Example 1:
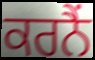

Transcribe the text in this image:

ਕਰਨੈਂ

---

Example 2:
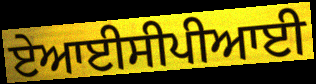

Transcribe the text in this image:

ਏਆਈਸੀਪੀਆਈ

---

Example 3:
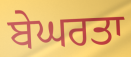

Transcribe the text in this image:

ਬੇਘਰਤਾ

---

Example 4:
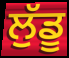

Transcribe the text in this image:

ਲੁੱਡੂ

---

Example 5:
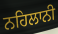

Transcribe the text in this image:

ਨਹਿਲਾਨੀ